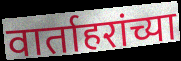
वार्ताहरांच्या